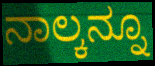
ನಾಲ್ಕನ್ನೂ